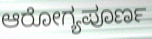
ಆರೋಗ್ಯಪೂರ್ಣ